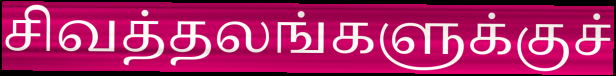
சிவத்தலங்களுக்குச்